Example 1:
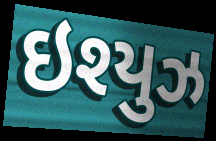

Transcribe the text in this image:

ઇશ્યુઝ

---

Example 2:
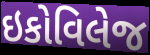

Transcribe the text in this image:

ઇકોવિલેજ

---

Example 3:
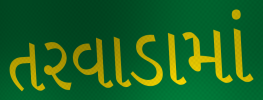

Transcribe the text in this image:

તરવાડામાં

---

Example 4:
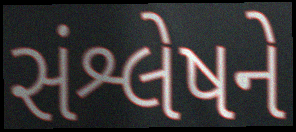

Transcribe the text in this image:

સંશ્લેષને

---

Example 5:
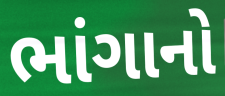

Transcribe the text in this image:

ભાંગાનો